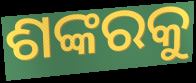
ଶଙ୍କରକୁ